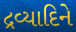
દ્રવ્યાદિને